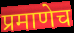
प्रमाणेच